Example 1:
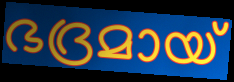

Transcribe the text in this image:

ഭദ്രമായ്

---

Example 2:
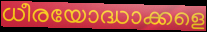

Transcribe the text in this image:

ധീരയോദ്ധാക്കളെ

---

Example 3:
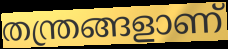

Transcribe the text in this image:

തന്ത്രങ്ങളാണ്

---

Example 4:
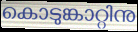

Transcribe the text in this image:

കൊടുങ്കാറ്റിനു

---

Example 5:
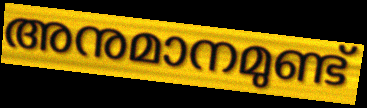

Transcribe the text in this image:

അനുമാനമുണ്ട്